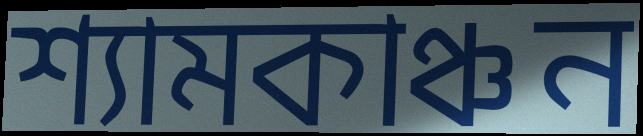
শ্যামকাঞ্চন